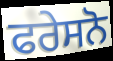
ਫਰੇਸਨੋ